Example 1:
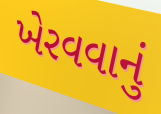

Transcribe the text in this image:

ખેરવવાનું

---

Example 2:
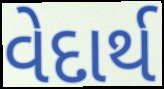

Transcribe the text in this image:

વેદાર્થ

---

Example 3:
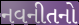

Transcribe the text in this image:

નવનીતનો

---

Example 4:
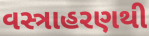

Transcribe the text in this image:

વસ્ત્રાહરણથી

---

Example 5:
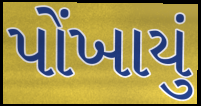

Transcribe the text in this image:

પોંખાયું